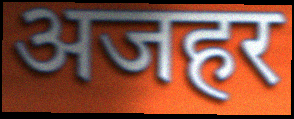
अजहर